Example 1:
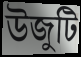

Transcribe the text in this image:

উজুটি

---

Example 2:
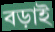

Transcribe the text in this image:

বড়াই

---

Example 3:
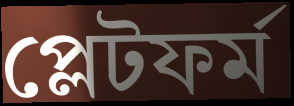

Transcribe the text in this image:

প্লেটফৰ্ম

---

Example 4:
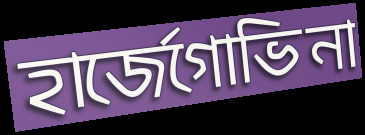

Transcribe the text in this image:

হাৰ্জেগোভিনা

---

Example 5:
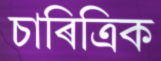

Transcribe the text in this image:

চাৰিত্ৰিক